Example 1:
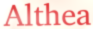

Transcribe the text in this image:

Althea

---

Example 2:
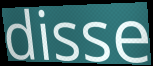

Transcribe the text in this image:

disse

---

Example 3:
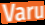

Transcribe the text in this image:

Varu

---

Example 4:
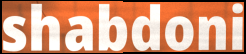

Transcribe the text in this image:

shabdoni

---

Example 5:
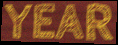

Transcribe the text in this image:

YEAR